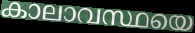
കാലാവസ്ഥയെ